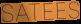
SATEES